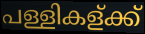
പള്ളികള്ക്ക്